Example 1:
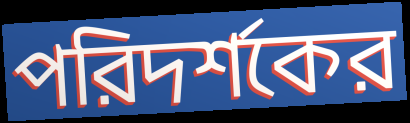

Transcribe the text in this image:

পরিদর্শকের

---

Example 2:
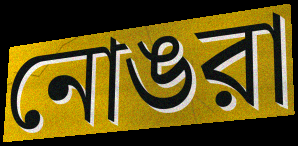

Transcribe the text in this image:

নোঙরা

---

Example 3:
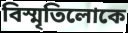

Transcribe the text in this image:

বিস্মৃতিলোকে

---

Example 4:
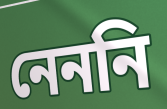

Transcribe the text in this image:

নেননি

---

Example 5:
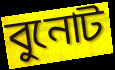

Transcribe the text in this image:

বুনোট